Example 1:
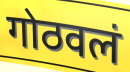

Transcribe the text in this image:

गोठवलं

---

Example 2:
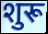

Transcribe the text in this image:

शुरू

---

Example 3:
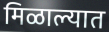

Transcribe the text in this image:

मिळाल्यात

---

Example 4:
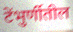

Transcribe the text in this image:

टेंभुर्णीतील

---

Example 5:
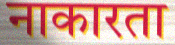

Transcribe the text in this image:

नाकारता